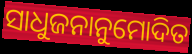
ସାଧୁଜନାନୁମୋଦିତ